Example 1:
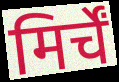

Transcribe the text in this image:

मिर्चें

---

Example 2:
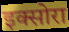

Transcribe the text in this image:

इक्सोरा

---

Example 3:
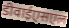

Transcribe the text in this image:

डीवाईएसएल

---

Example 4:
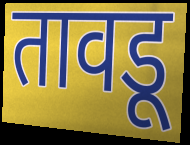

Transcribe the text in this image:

तावडू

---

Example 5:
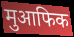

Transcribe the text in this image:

मुआफिक